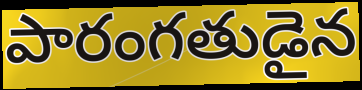
పారంగతుడైన